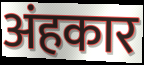
अंहकार